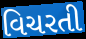
વિચરતી